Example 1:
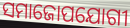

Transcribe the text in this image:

ସମାଜୋପଯୋଗୀ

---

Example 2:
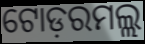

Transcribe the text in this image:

ଟୋଡ଼ରମଲ୍ଲ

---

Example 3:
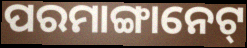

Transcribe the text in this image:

ପରମାଙ୍ଗାନେଟ୍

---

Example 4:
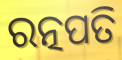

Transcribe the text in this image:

ରତ୍ନପତି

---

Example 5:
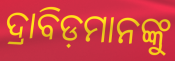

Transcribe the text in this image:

ଦ୍ରାବିଡ଼ମାନଙ୍କୁ